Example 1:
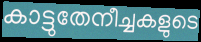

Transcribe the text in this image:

കാട്ടുതേനീച്ചകളുടെ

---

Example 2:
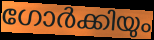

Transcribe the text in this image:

ഗോർക്കിയും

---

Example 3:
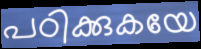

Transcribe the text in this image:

പഠിക്കുകയേ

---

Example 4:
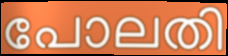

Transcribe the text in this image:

പോലതി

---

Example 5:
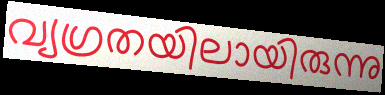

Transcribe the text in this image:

വ്യഗ്രതയിലായിരുന്നു